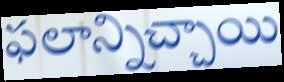
ఫలాన్నిచ్చాయి